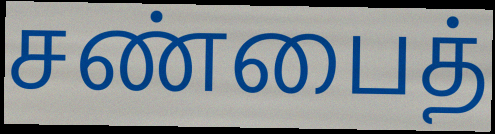
சண்பைத்